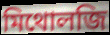
মিথোলজি